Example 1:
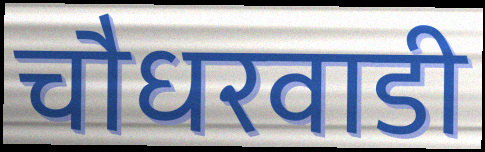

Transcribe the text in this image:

चौधरवाडी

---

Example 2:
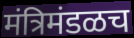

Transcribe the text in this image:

मंत्रिमंडळच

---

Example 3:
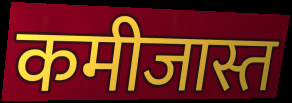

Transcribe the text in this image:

कमीजास्त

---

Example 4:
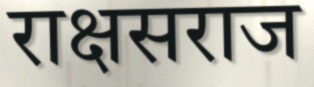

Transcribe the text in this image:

राक्षसराज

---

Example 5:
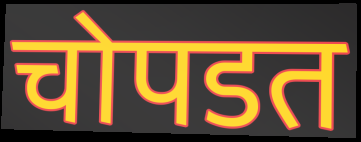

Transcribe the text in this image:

चोपडत